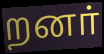
றனர்